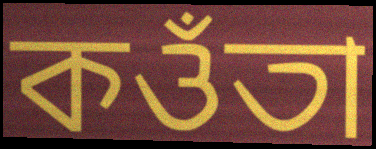
কওঁতা